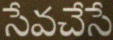
సేవచేసే